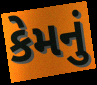
કેમનું